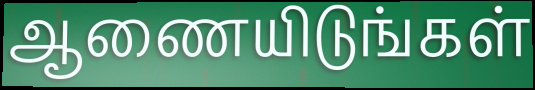
ஆணையிடுங்கள்